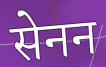
सेनन